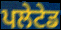
ਪਲੇਟੇਡ